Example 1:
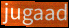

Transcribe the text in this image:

jugaad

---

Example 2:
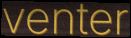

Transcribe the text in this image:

venter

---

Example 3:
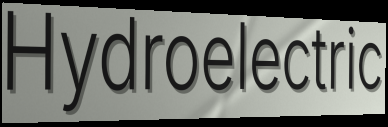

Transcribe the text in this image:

Hydroelectric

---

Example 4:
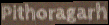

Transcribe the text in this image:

Pithoragarh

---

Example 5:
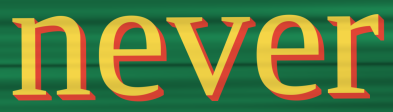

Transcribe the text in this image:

never